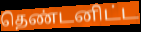
தெண்டனிட்ட